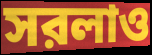
সরলাও